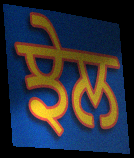
ਝੇਲ